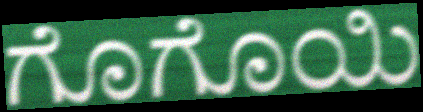
ಗೊಗೊಯಿ